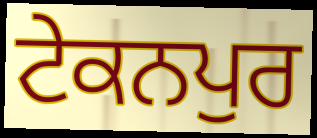
ਟੇਕਨਪੁਰ